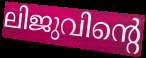
ലിജുവിന്റെ